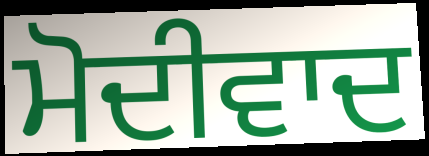
ਮੋਦੀਵਾਦ